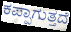
ಕಪ್ಪಾಗುತ್ತದೆ